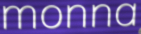
monna